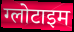
ग्लोटाइम